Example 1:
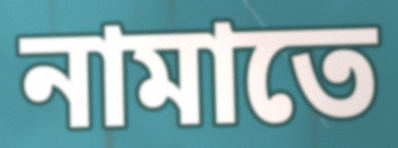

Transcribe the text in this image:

নামাতে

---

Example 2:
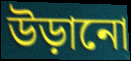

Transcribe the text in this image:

উড়ানো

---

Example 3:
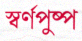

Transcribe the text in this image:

স্বর্ণপুষ্প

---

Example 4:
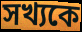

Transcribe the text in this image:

সখ্যকে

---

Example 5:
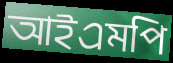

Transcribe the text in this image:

আইএমপি